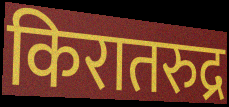
किरातरुद्र